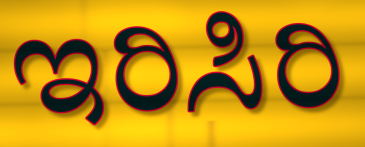
ಇರಿಸಿರಿ